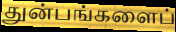
துன்பங்களைப்